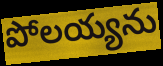
పోలయ్యను